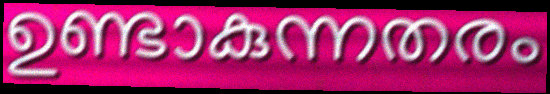
ഉണ്ടാകുന്നതരം